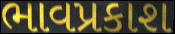
ભાવપ્રકાશ